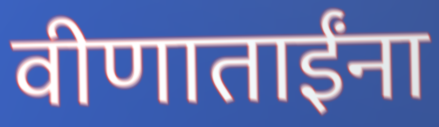
वीणाताईंना